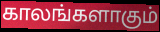
காலங்களாகும்